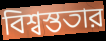
বিশ্বস্ততার